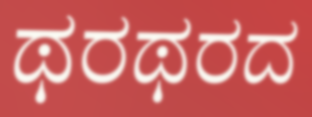
ಥರಥರದ